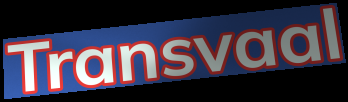
Transvaal